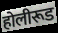
होलीरूड